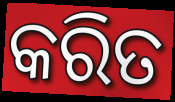
କରିତ